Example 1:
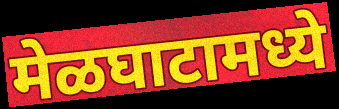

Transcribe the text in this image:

मेळघाटामध्ये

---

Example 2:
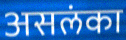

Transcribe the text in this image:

असलंका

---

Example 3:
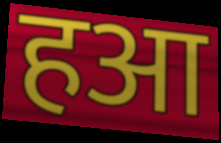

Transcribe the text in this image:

हआ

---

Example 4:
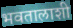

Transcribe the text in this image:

भवतालाशी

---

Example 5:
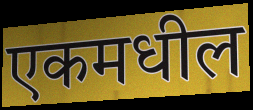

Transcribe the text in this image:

एकमधील